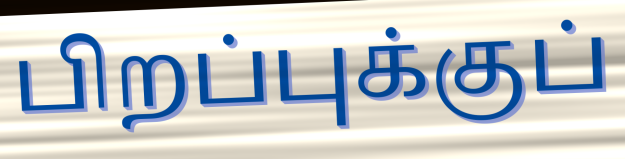
பிறப்புக்குப்